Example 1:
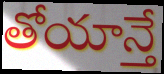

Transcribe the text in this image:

తోయాన్తే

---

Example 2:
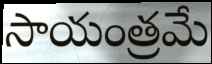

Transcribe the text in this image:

సాయంత్రమే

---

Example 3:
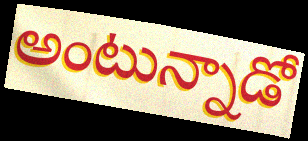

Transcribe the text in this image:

అంటున్నాడో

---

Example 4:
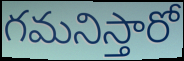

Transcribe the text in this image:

గమనిస్తారో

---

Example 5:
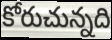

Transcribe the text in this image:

కోరుచున్నది